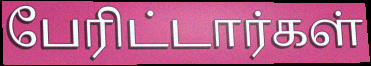
பேரிட்டார்கள்